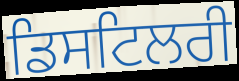
ਡਿਸਟਿਲਰੀ